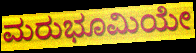
ಮರುಭೂಮಿಯೇ